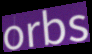
orbs